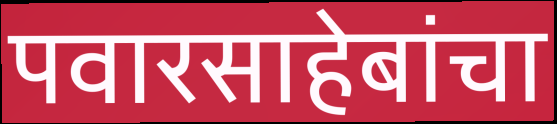
पवारसाहेबांचा